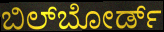
ಬಿಲ್‌ಬೋರ್ಡ್